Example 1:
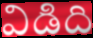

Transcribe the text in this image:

విడిది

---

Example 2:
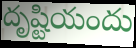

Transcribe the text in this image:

దృష్టియందు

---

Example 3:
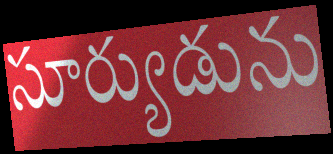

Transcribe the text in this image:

సూర్యుడును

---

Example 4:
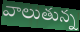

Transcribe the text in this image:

వాలుతున్న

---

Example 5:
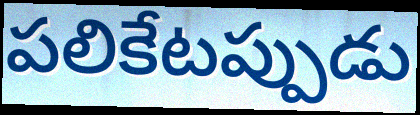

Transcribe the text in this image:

పలికేటప్పుడు